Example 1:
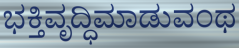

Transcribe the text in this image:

ಭಕ್ತಿವೃದ್ಧಿಮಾಡುವಂಥ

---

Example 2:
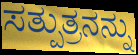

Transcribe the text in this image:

ಸತ್ಪುತ್ರನನ್ನು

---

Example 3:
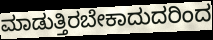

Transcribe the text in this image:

ಮಾಡುತ್ತಿರಬೇಕಾದುದರಿಂದ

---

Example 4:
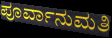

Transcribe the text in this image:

ಪೂರ್ವಾನುಮತಿ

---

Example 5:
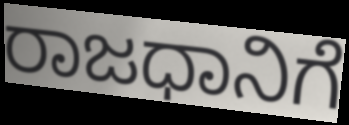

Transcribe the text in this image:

ರಾಜಧಾನಿಗೆ